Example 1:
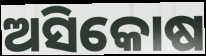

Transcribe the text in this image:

ଅସିକୋଷ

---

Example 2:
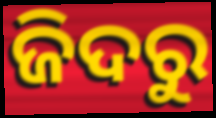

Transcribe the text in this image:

ଜିଦରୁ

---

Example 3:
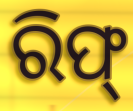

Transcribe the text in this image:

ରିଫ୍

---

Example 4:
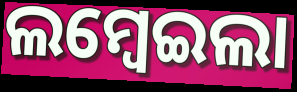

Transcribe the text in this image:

ଲମ୍ବେଇଲା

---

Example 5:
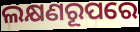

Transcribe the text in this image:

ଲକ୍ଷଣରୂପରେ